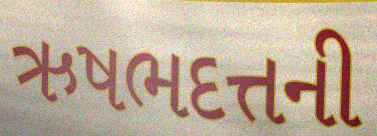
ઋષભદત્તની